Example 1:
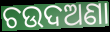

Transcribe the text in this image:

ଚଉଦଅଣା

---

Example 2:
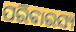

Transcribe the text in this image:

ପରିବାରସ୍ୟ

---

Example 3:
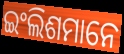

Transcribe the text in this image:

ଇଂଲିଶମାନେ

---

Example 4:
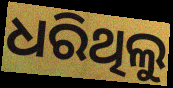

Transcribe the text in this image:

ଧରିଥିଲୁ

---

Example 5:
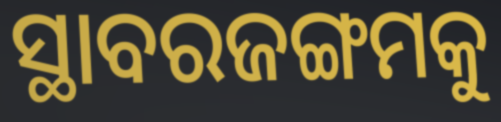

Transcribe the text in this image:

ସ୍ଥାବରଜଙ୍ଗମକୁ